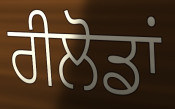
ਰੀਲੋਡਾਂ